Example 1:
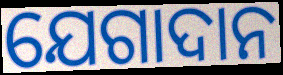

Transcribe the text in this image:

ଯେଗାଦାନ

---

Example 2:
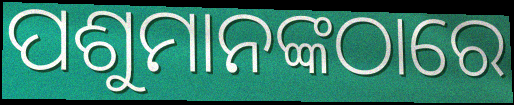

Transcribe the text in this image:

ପଶୁମାନଙ୍କଠାରେ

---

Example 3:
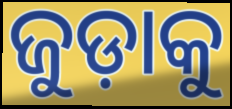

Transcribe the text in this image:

ଜୁଡ଼ାକୁ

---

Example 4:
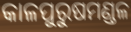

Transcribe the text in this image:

କାଳପୁରୁଷମଣ୍ଡଳ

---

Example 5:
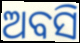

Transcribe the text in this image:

ଅବସି